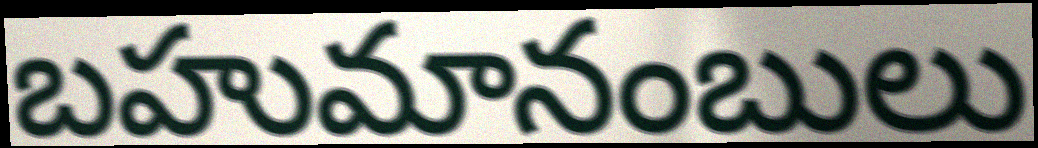
బహుమానంబులు